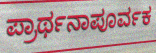
ಪ್ರಾರ್ಥನಾಪೂರ್ವಕ